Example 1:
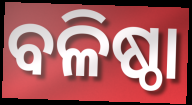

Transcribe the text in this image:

ବଳିଷ୍ଠା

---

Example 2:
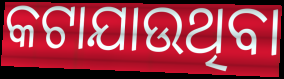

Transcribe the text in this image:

କଟାଯାଉଥିବା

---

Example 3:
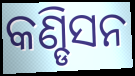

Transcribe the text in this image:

କଣ୍ଡିସନ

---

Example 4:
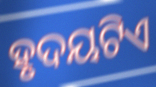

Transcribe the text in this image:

ହୃଦୟଟିଏ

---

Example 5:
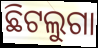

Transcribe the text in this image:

ଛିଟଲୁଗା